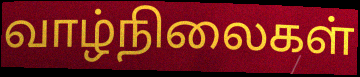
வாழ்நிலைகள்